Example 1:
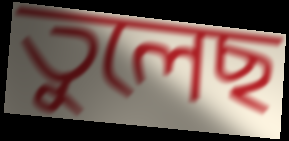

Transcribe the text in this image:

তুলেছ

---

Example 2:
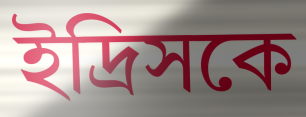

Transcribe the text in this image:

ইদ্রিসকে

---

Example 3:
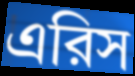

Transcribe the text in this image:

এরিস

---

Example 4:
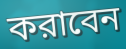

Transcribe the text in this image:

করাবেন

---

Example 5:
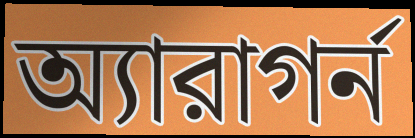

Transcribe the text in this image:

অ্যারাগর্ন